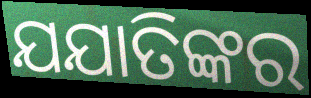
ଯଯାତିଙ୍କର